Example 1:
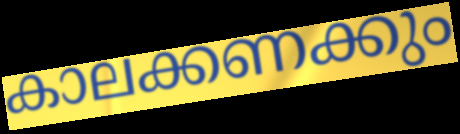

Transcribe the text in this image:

കാലക്കണക്കും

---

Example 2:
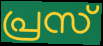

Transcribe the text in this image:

പ്രസ്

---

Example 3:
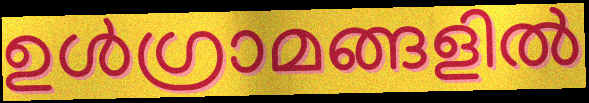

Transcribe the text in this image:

ഉൾഗ്രാമങ്ങളിൽ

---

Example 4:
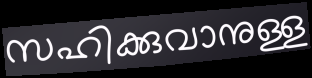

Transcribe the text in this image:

സഹിക്കുവാനുള്ള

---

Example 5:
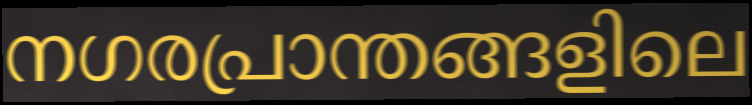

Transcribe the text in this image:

നഗരപ്രാന്തങ്ങളിലെ